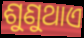
ଶୁଣୁଥାଏ